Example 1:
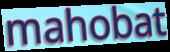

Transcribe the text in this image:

mahobat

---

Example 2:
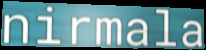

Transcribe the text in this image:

nirmala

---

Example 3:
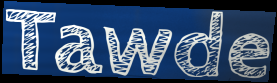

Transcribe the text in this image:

Tawde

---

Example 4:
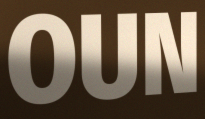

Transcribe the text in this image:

OUN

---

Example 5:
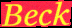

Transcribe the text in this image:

Beck